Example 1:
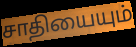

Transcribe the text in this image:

சாதியையும்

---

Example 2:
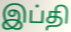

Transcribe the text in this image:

இப்தி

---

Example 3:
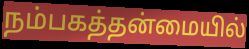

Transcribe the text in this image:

நம்பகத்தன்மையில்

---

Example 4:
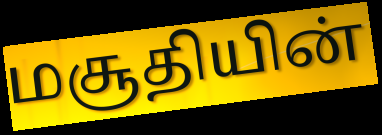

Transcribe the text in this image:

மசூதியின்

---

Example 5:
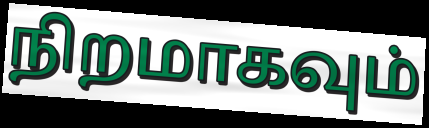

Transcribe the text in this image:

நிறமாகவும்